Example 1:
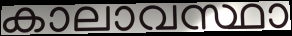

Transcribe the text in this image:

കാലാവസ്ഥാ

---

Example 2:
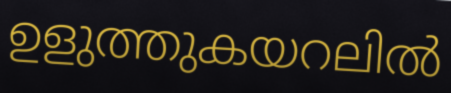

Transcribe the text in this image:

ഉളുത്തുകയറലിൽ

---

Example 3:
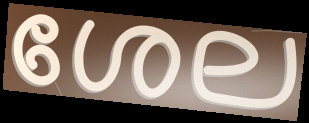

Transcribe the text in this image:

ശേല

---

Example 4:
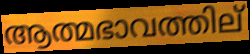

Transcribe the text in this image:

ആത്മഭാവത്തില്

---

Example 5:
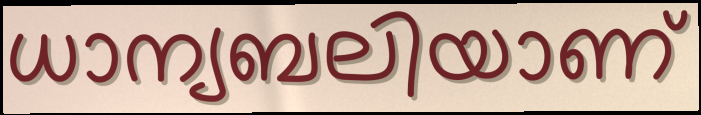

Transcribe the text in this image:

ധാന്യബലിയാണ്